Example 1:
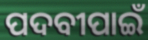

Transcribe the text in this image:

ପଦବୀପାଇଁ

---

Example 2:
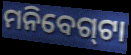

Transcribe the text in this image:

ମନିବେଗ୍‍ଟା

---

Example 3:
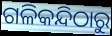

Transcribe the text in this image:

ଗଳିକନ୍ଦିଠାରୁ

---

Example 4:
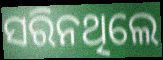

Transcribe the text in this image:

ସରିନଥିଲେ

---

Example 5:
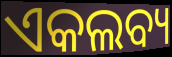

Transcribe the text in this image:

ଏକଲବ୍ୟ